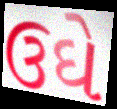
ઉઘે